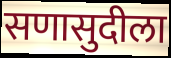
सणासुदीला